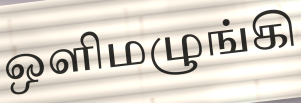
ஒளிமழுங்கி